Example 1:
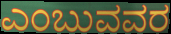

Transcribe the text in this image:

ಎಂಬುವವರ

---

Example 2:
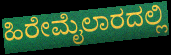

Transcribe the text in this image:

ಹಿರೇಮೈಲಾರದಲ್ಲಿ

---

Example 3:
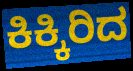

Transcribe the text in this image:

ಕಿಕ್ಕಿರಿದ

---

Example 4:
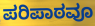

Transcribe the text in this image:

ಪರಿಪಾಠವೂ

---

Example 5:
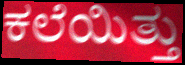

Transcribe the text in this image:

ಕಲೆಯಿತ್ತು